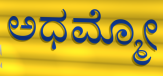
ಅಧಮ್ಮೋ